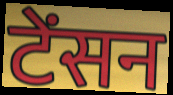
टेंसन